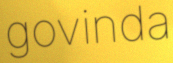
govinda